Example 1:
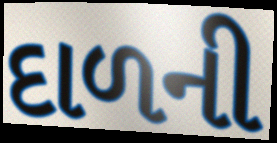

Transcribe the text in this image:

દાળની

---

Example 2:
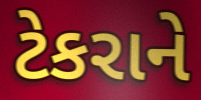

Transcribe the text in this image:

ટેકરાને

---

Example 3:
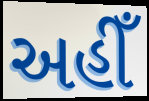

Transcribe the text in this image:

અહીઁ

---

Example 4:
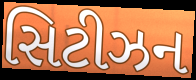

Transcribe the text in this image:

સિટીઝન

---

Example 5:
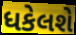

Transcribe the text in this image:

ધકેલશે